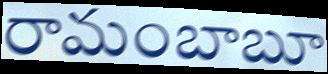
రామంబాబూ